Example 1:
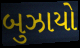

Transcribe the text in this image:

બુઝાયો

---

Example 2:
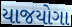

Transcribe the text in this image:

યાજયોગા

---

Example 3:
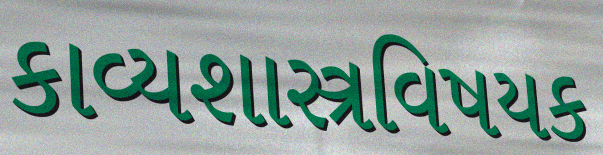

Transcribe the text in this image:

કાવ્યશાસ્ત્રવિષયક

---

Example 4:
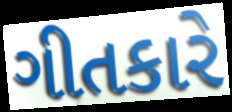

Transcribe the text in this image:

ગીતકારે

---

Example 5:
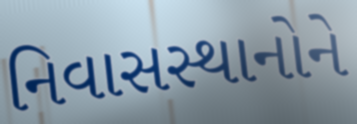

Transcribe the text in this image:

નિવાસસ્થાનોને